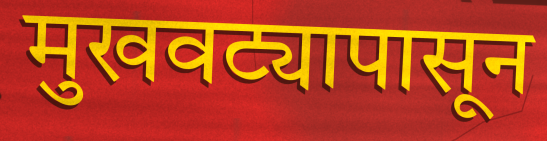
मुखवट्यापासून